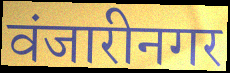
वंजारीनगर